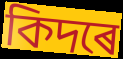
কিদৰে